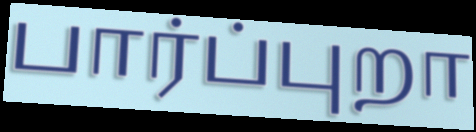
பார்ப்புறா